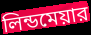
লিন্ডমেয়ার